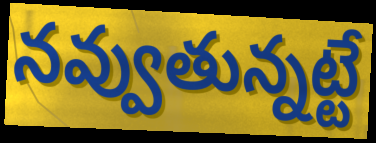
నవ్వుతున్నట్టే